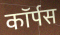
कॉर्पस